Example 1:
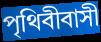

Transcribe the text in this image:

পৃথিবীবাসী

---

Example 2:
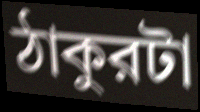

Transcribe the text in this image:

ঠাকুরটা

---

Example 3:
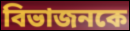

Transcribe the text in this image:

বিভাজনকে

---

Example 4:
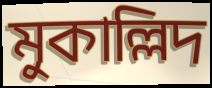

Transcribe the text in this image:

মুকাল্লিদ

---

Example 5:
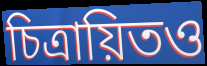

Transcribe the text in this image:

চিত্রায়িতও